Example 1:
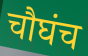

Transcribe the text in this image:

चौघंच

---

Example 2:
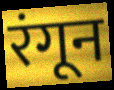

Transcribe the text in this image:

रंगून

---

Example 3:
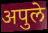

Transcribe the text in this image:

अपुले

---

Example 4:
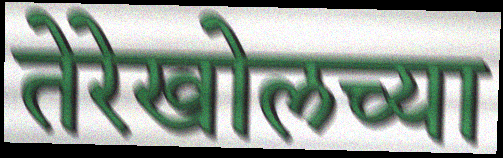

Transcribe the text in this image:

तेरेखोलच्या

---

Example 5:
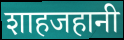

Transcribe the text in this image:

शाहजहानी